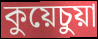
কুয়েচুয়া